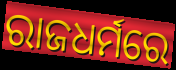
ରାଜଧର୍ମରେ